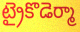
ట్రైకొడెర్మా